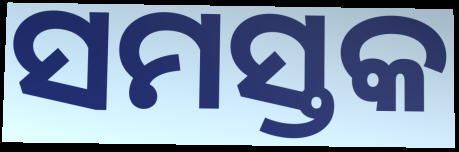
ସମସ୍ତକ